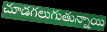
చూడగలుగుతున్నాయి